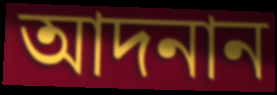
আদনান